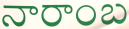
నారాంబ